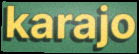
karajo